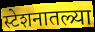
स्टेशनातल्या